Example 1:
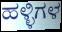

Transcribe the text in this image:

ಹಳ್ಳಿಗಳ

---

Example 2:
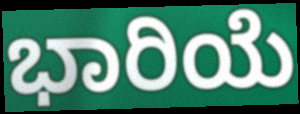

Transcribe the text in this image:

ಭಾರಿಯೆ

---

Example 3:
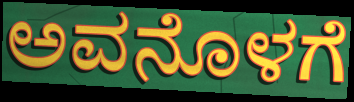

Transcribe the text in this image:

ಅವನೊಳಗೆ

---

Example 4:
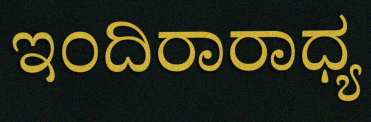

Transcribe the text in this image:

ಇಂದಿರಾರಾಧ್ಯ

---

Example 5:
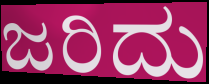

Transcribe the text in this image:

ಜರಿದು